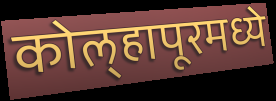
कोल्हापूरमध्ये